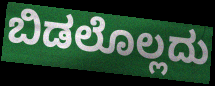
ಬಿಡಲೊಲ್ಲದು